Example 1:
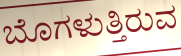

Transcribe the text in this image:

ಬೊಗಳುತ್ತಿರುವ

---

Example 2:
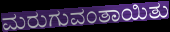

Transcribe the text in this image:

ಮರುಗುವಂತಾಯಿತು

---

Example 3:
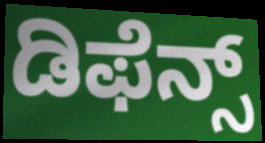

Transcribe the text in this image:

ಡಿಫೆನ್ಸ್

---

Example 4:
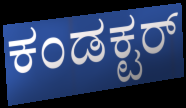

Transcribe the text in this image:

ಕಂಡಕ್ಟರ್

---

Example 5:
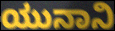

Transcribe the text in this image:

ಯುನಾನಿ